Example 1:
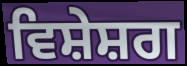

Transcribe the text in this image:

ਵਿਸ਼ੇਸ਼ਗ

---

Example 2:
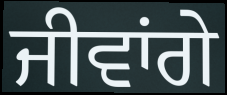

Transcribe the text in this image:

ਜੀਵਾਂਗੇ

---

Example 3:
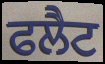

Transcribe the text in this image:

ਫਲੈਟ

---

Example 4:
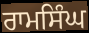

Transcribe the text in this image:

ਰਾਮਸਿੰਘ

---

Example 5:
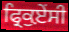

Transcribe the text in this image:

ਫ੍ਰਿਕ਼ੁਏਂਸੀ